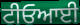
ਟੀਓਆਈ